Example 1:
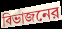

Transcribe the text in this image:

বিভাজনের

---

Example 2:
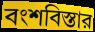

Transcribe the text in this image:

বংশবিস্তার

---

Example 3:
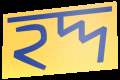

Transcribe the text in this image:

হদ্দ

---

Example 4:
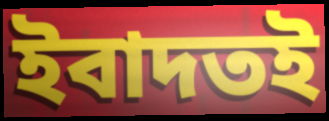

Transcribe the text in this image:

ইবাদতই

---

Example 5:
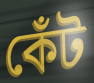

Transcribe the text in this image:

কেঁট